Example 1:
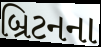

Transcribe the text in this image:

બ્રિટનના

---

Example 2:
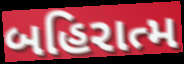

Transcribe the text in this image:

બહિરાત્મ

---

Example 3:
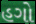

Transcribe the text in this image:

હગો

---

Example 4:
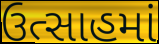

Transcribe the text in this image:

ઉત્સાહમાં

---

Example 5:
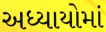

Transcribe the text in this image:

અધ્યાયોમાં